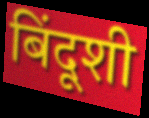
बिंदूशी